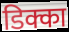
डिक्का